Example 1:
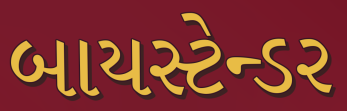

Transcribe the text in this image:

બાયસ્ટેન્ડર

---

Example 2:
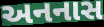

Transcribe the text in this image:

અનનાસ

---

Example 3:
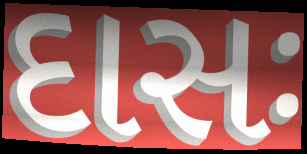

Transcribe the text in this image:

દાસઃ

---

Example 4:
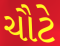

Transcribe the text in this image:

ચૌટે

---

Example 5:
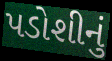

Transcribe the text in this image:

પડોશીનું